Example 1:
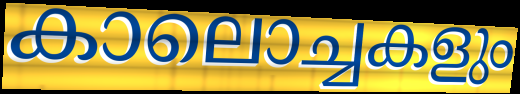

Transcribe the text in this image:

കാലൊച്ചകളും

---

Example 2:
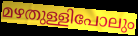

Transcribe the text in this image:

മഴതുള്ളിപോലും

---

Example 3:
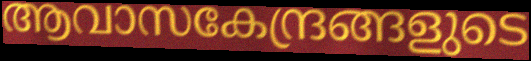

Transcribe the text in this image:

ആവാസകേന്ദ്രങ്ങളുടെ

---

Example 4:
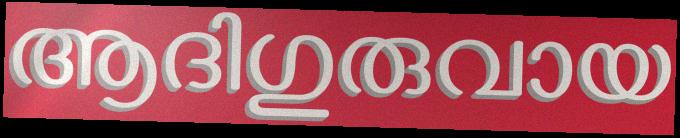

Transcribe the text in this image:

ആദിഗുരുവായ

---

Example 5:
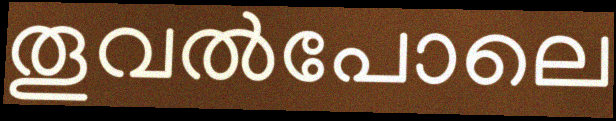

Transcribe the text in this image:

തൂവൽപോലെ